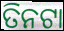
ତିନଟା